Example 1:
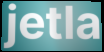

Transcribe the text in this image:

jetla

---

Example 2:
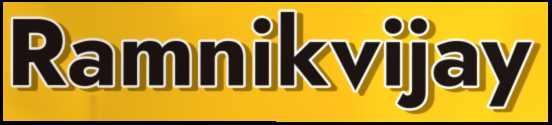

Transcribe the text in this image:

Ramnikvijay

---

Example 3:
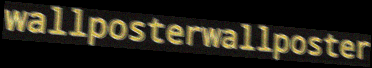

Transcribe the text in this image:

wallposterwallposter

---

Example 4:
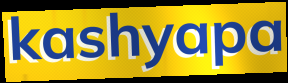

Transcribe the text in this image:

kashyapa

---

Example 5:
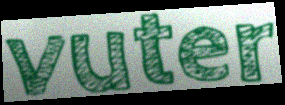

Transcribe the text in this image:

vuter